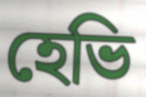
হেভি